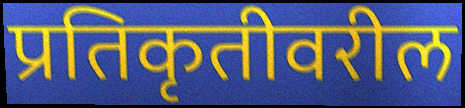
प्रतिकृतीवरील